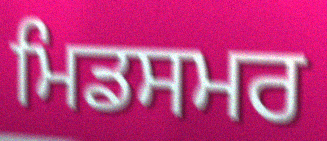
ਮਿਡਸਮਰ